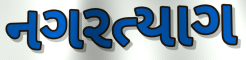
નગરત્યાગ